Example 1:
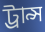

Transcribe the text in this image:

ট্ৰান্স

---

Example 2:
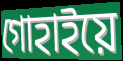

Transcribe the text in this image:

গোহাইয়ে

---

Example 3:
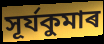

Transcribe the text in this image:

সূৰ্যকুমাৰ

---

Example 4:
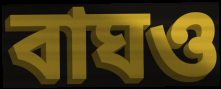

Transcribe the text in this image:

বাঘও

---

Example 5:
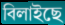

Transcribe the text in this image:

বিলাইছে